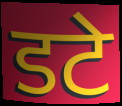
डटे